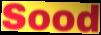
Sood